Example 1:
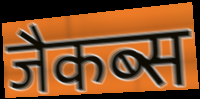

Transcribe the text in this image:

जैकब्स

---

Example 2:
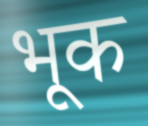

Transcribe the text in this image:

भूक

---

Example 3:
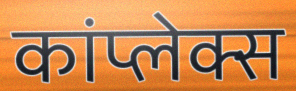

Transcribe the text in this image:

कांप्लेक्स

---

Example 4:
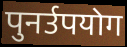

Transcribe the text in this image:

पुनर्उपयोग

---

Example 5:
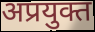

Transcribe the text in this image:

अप्रयुक्त